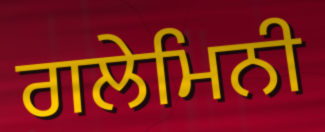
ਗਲੇਮਿਨੀ